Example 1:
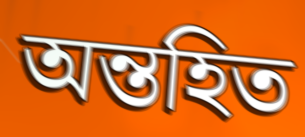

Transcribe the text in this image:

অন্তহিত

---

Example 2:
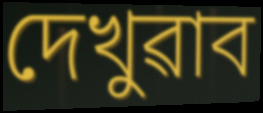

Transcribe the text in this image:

দেখুৱাব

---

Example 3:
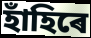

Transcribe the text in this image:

হাঁহিৰে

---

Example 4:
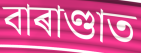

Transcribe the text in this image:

বাৰাণ্ডাত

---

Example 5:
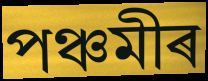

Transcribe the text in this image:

পঞ্চমীৰ